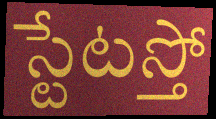
స్టేటస్తో